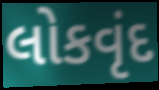
લોકવૃંદ